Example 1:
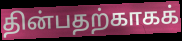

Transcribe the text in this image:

தின்பதற்காகக்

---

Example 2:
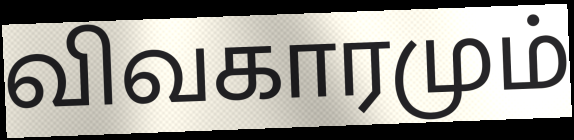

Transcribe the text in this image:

விவகாரமும்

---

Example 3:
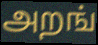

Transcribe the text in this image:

அறங்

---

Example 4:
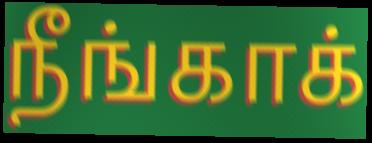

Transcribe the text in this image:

நீங்காக்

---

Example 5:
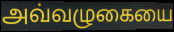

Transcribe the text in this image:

அவ்வழுகையை